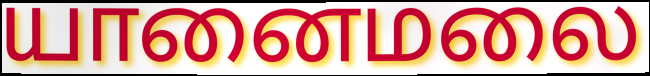
யானைமலை